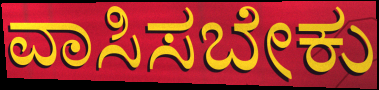
ವಾಸಿಸಬೇಕು